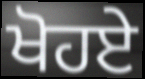
ਖੋਹਏ